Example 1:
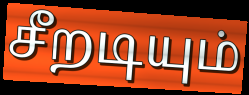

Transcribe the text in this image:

சீறடியும்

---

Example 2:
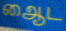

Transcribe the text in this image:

ஆைட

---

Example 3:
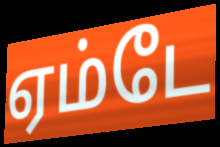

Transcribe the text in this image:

ஏம்டே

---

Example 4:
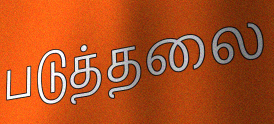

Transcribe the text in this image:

படுத்தலை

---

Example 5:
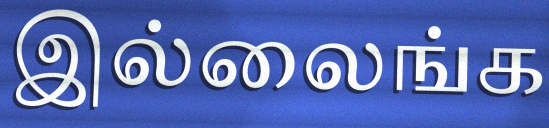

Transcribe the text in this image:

இல்லைங்க